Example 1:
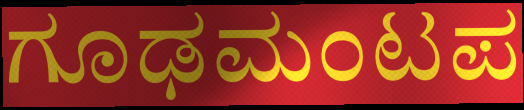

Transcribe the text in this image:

ಗೂಢಮಂಟಪ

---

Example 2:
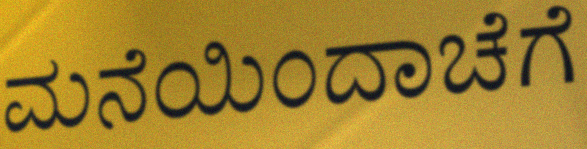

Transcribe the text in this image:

ಮನೆಯಿಂದಾಚೆಗೆ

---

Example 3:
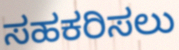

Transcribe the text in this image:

ಸಹಕರಿಸಲು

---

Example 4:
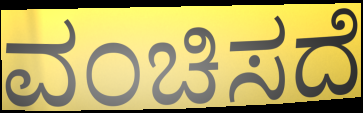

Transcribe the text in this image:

ವಂಚಿಸದೆ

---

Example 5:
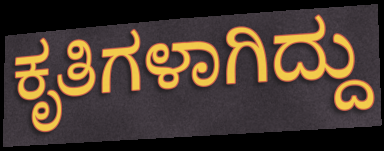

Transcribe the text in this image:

ಕೃತಿಗಳಾಗಿದ್ದು